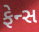
ફેન્સ